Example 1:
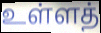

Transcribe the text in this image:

உள்ளத்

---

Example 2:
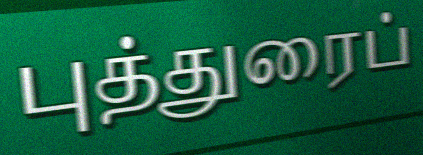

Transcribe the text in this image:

புத்துரைப்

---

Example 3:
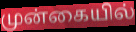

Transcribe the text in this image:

முன்கையில்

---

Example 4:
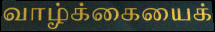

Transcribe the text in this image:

வாழ்க்கையைக்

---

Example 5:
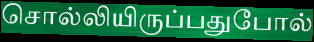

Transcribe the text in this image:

சொல்லியிருப்பதுபோல்